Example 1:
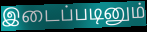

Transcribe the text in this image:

இடைப்படினும்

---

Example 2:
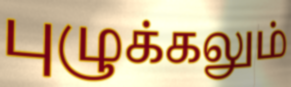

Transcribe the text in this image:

புழுக்கலும்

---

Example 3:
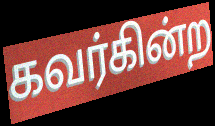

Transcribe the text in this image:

கவர்கின்ற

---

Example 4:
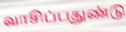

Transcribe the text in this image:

வாசிப்பதுண்டு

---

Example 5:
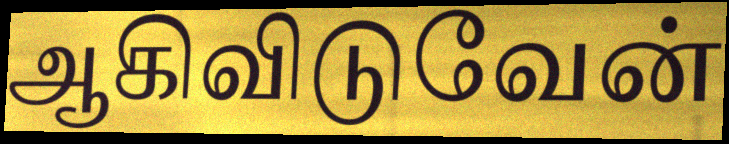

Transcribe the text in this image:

ஆகிவிடுவேன்